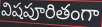
విషపూరితంగా